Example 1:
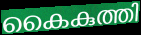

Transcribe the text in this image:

കൈകുത്തി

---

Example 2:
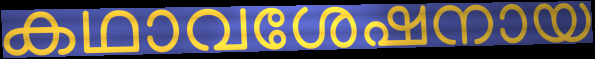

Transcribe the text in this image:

കഥാവശേഷനായ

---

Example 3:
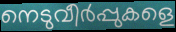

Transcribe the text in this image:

നെടുവീർപ്പുകളെ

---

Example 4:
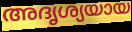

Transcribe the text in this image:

അദൃശ്യയായ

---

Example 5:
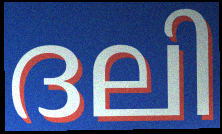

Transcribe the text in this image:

ദലി